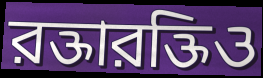
রক্তারক্তিও